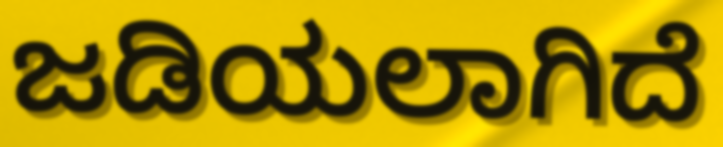
ಜಡಿಯಲಾಗಿದೆ